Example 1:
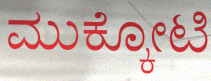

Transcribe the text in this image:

ಮುಕ್ಕೋಟಿ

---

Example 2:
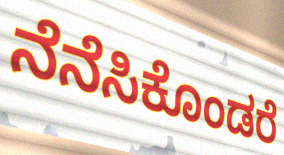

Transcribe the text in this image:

ನೆನೆಸಿಕೊಂಡರೆ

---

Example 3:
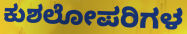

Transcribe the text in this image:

ಕುಶಲೋಪರಿಗಳ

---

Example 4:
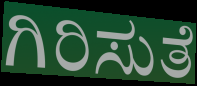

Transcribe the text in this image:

ಗಿರಿಸುತೆ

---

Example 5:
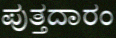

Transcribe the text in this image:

ಪುತ್ತದಾರಂ